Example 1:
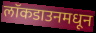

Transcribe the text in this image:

लॉकडाउनमधून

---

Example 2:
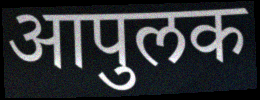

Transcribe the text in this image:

आपुलक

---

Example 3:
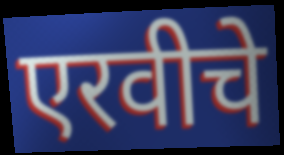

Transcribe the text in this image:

एरवीचे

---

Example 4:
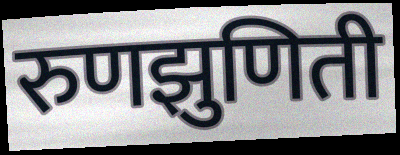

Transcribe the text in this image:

रुणझुणिती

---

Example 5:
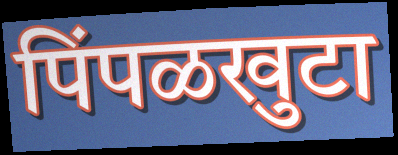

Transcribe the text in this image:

पिंपळखुटा